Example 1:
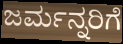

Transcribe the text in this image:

ಜರ್ಮನ್ನರಿಗೆ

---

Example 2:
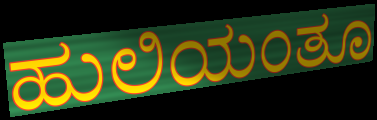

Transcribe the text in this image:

ಹುಲಿಯಂತೂ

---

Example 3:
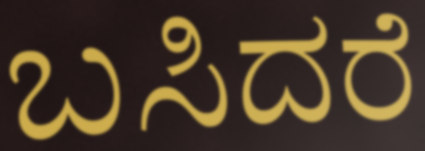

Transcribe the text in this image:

ಬಸಿದರೆ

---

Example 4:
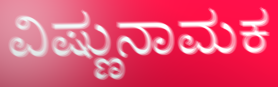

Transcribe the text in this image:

ವಿಷ್ಣುನಾಮಕ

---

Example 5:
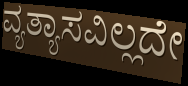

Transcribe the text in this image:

ವ್ಯತ್ಯಾಸವಿಲ್ಲದೇ